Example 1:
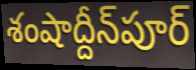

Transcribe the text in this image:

శంషాద్దీన్‌పూర్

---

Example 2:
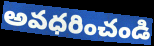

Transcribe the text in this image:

అవధరించండి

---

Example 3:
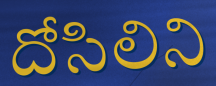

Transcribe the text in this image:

దోసిలిని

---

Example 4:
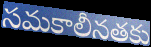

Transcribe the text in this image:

సమకాలీనతకు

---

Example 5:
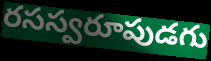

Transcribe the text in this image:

రసస్వరూపుడగు